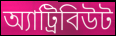
অ্যাট্রিবিউট